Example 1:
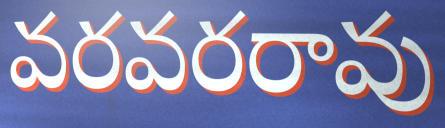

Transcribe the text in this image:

వరవరరావు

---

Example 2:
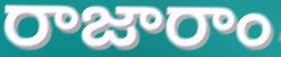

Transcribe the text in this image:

రాజారాం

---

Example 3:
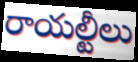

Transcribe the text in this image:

రాయల్టీలు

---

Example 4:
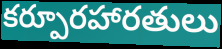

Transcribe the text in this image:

కర్పూరహారతులు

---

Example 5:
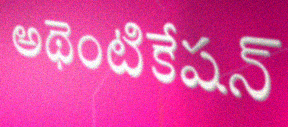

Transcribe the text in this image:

అథెంటికేషన్